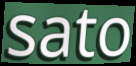
sato